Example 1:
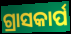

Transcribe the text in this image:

ଗ୍ରାସକାର୍ପ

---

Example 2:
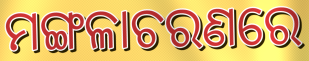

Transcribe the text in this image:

ମଙ୍ଗଳାଚରଣରେ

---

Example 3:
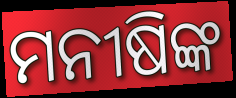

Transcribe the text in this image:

ମନୀଷିଙ୍କ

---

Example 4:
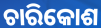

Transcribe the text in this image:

ଚାରିକୋଶ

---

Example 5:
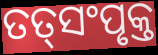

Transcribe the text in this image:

ତତ୍‌ସଂପୃକ୍ତ